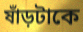
ষাঁড়টাকে